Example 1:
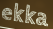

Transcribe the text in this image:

ekka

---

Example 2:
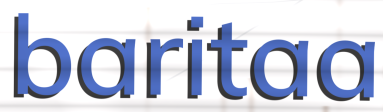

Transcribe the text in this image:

baritaa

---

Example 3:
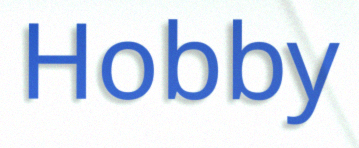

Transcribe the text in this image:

Hobby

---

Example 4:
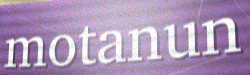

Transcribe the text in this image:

motanun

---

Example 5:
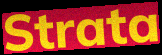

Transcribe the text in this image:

Strata